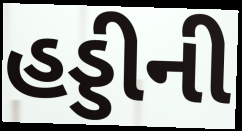
હડ્ડીની